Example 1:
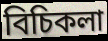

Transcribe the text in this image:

বিচিকলা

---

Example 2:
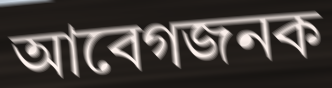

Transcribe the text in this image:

আবেগজনক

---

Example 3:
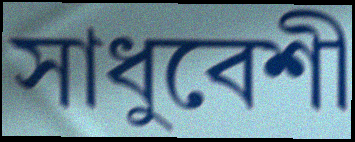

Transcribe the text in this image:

সাধুবেশী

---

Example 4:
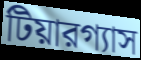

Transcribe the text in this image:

টিয়ারগ্যাস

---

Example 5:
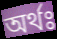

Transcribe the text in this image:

অর্থঃ